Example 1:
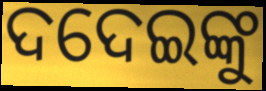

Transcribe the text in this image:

ଦଦେଇଙ୍କୁ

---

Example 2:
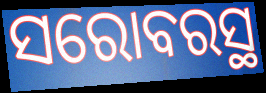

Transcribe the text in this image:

ସରୋବରସ୍ଥ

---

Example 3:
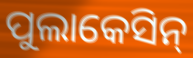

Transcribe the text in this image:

ପୁଲାକେସିନ୍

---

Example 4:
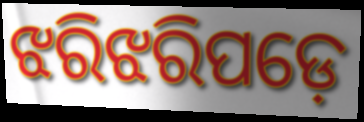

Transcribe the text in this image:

ଝରିଝରିପଡ଼େ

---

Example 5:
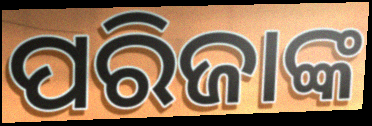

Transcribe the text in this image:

ପରିଜାଙ୍କ